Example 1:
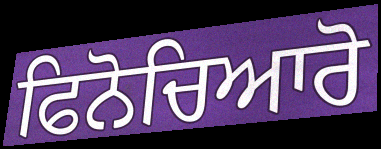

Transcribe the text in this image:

ਫਿਨੋਚਿਆਰੋ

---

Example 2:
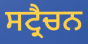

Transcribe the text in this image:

ਸਟ੍ਰੈਚਨ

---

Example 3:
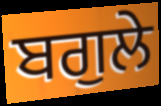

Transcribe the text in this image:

ਬਗੁਲੇ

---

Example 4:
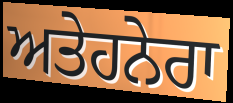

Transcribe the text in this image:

ਅਤੇਹਨੇਰਾ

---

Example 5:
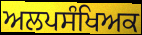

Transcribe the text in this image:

ਅਲਪਸੰਖਿਅਕ